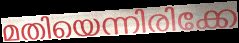
മതിയെന്നിരിക്കേ